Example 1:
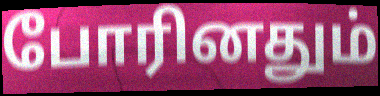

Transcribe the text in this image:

போரினதும்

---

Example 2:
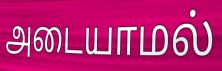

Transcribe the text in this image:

அடையாமல்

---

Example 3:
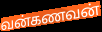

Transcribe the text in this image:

வன்கணவன்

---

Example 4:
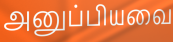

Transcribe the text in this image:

அனுப்பியவை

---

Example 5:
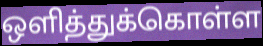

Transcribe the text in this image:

ஒளித்துக்கொள்ள